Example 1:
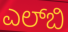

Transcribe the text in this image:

ಎಲ್‌ಬಿ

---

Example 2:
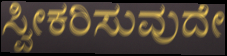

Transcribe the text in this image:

ಸ್ವೀಕರಿಸುವುದೇ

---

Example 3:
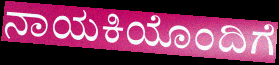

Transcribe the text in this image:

ನಾಯಕಿಯೊಂದಿಗೆ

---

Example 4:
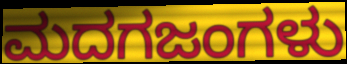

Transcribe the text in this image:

ಮದಗಜಂಗಳು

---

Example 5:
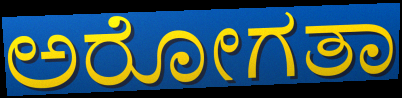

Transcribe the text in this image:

ಅರೋಗತಾ